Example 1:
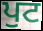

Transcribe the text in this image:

ਪੁਟ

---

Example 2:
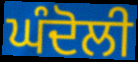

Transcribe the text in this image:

ਘੰਦੋਲੀ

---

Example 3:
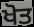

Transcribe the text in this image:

ਖੋਤ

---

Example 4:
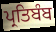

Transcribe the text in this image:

ਪ੍ਰਤਿਬੰਬ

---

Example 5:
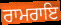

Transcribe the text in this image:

ਰਾਮਰਾਇ